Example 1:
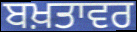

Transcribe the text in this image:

ਬਖ਼ਤਾਵਰ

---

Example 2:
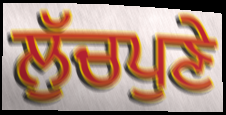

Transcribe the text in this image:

ਲੁੱਚਪੁਣੇ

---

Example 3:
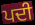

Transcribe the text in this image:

ਪਦੀ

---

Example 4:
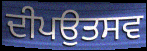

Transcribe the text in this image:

ਦੀਪਉਤਸਵ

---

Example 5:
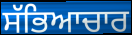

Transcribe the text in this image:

ਸੱਭਿਆਚਾਰ